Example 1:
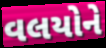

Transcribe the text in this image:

વલયોને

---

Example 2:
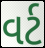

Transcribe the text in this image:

વર્ટ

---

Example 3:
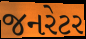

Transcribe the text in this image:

જનરેટર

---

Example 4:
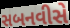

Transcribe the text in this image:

સબનવીસે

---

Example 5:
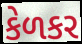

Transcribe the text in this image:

કેળકર